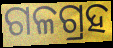
ଗଳଗ୍ରହ